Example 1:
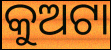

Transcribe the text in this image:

କୁଅଟା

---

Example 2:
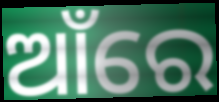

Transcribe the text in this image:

ଆଁରେ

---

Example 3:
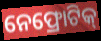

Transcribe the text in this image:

ନେଫ୍ରୋଟିକ୍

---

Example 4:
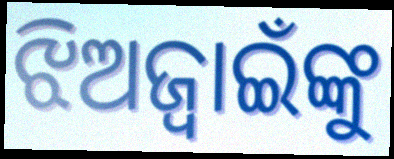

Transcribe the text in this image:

ଝିଅଜ୍ୱାଇଁଙ୍କୁ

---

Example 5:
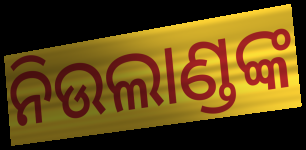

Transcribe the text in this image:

ନିଉଲାଣ୍ଡଙ୍କ